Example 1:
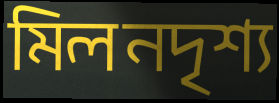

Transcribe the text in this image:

মিলনদৃশ্য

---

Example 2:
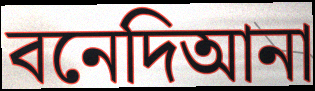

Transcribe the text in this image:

বনেদিআনা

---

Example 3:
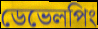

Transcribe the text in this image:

ডেভেলপিং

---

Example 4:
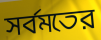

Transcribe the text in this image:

সর্বমতের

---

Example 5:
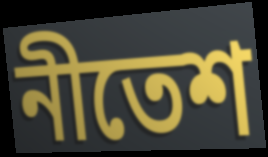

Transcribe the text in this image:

নীতেশ